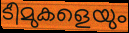
ടീമുകളെയും